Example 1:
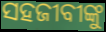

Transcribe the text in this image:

ସହଜୀବୀଙ୍କୁ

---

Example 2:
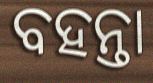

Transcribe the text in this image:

ବହନ୍ତା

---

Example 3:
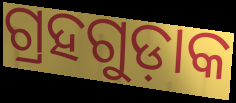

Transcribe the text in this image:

ଗ୍ରହଗୁଡ଼ାକ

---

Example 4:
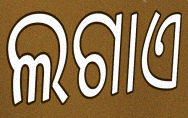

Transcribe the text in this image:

ଲଗାଏ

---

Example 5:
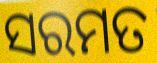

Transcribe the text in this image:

ସରମତ